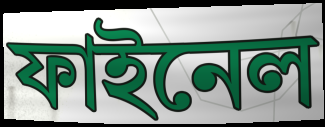
ফাইনেল